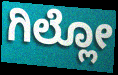
ಗಿಲ್ಲೋ